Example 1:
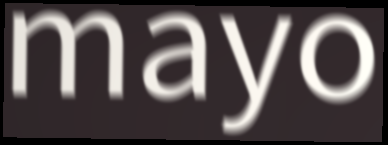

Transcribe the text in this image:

mayo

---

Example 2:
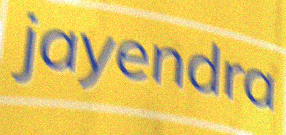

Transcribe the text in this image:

jayendra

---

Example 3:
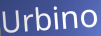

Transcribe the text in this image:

Urbino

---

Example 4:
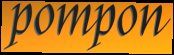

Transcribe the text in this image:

pompon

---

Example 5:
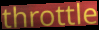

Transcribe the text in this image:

throttle